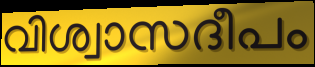
വിശ്വാസദീപം